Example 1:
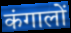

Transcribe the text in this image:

कंगालों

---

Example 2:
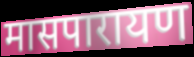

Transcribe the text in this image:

मासपारायण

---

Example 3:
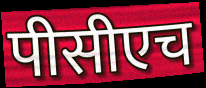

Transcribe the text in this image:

पीसीएच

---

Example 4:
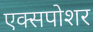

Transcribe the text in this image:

एक्सपोशर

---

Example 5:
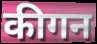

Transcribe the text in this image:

कीगन